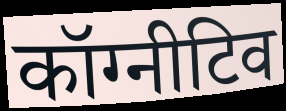
कॉग्नीटिव